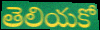
తెలియకో